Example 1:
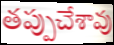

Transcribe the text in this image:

తప్పుచేశావు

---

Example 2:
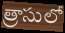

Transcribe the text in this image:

త్రాసులో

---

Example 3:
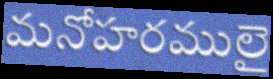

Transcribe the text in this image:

మనోహరములై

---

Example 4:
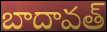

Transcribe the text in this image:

బాదావత్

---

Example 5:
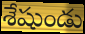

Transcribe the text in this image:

శేషుండు